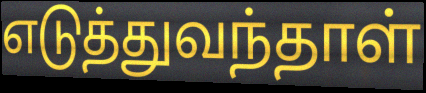
எடுத்துவந்தாள்